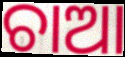
ଚାଆ